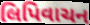
લિપિવાચન